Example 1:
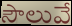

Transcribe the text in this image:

సౌలువే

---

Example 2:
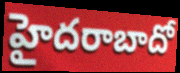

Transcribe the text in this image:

హైదరాబాదో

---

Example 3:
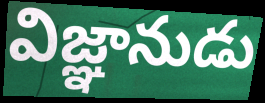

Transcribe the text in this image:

విజ్ఞానుడు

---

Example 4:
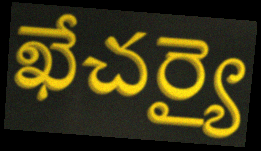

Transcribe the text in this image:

ఖేచర్యై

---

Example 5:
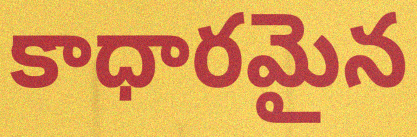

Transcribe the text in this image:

కాధారమైన